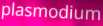
plasmodium